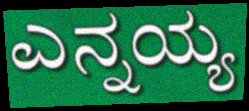
ಎನ್ನಯ್ಯ